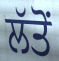
ਲੱਤੋਂ